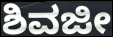
ಶಿವಜೀ